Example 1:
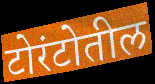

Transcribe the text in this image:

टोरंटोतील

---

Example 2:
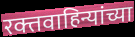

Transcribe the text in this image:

रक्तवाहिन्यांच्या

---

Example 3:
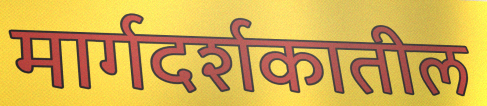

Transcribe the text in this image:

मार्गदर्शकातील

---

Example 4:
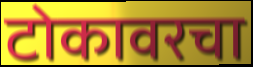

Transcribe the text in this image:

टोकावरचा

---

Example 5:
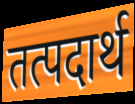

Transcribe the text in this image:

तत्पदार्थ